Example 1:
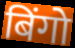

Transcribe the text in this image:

बिंगो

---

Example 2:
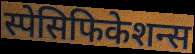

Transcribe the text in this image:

स्पेसिफिकेशन्स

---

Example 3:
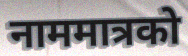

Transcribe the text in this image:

नाममात्रको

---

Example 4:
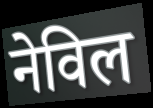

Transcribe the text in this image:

नेविल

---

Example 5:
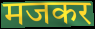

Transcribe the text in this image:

मजकर